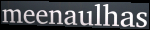
meenaulhas